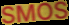
SMOS